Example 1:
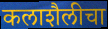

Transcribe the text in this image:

कलाशैलीचा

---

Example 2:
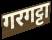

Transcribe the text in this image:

गरगट्टा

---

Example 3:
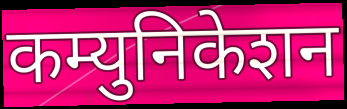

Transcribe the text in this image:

कम्युनिकेशन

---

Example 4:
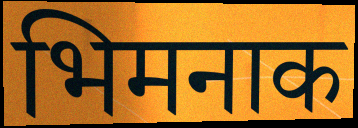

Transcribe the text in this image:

भिमनाक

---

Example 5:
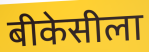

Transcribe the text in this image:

बीकेसीला